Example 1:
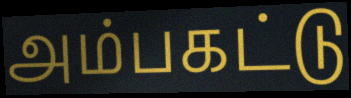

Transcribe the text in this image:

அம்பகட்டு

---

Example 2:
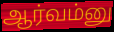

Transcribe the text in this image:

ஆர்வம்னு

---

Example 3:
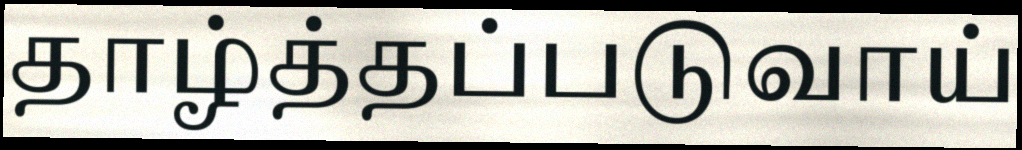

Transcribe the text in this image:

தாழ்த்தப்படுவாய்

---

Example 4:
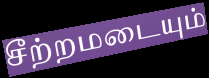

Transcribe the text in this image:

சீற்றமடையும்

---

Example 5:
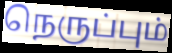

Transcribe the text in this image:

நெருப்பும்